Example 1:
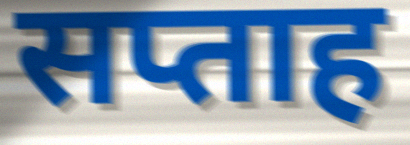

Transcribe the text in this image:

सप्ताह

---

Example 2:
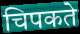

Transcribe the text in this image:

चिपकते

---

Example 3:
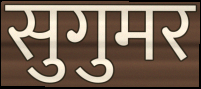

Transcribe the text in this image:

सुगुमर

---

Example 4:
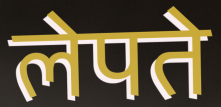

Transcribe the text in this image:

लेपते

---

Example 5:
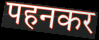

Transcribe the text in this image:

पहनकर